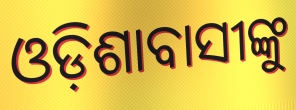
ଓଡ଼ିଶାବାସୀଙ୍କୁ